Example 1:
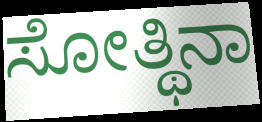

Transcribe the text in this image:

ಸೋತ್ಥಿನಾ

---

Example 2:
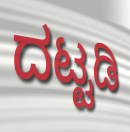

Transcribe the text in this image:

ದಟ್ಟಡಿ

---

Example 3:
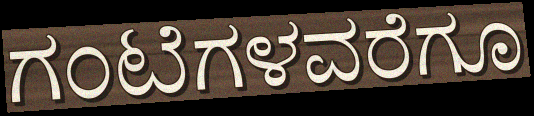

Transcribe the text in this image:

ಗಂಟೆಗಳವರೆಗೂ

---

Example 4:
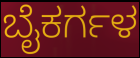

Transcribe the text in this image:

ಬೈಕರ್ಗಳ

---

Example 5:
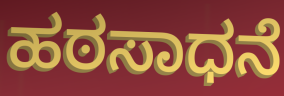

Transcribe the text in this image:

ಹಠಸಾಧನೆ